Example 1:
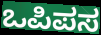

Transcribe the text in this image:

ಒಪಿಪಸ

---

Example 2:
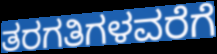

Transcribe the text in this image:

ತರಗತಿಗಳವರೆಗೆ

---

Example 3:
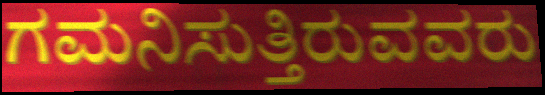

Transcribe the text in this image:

ಗಮನಿಸುತ್ತಿರುವವರು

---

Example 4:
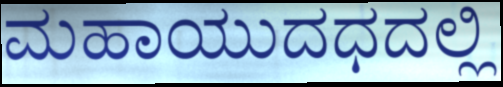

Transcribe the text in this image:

ಮಹಾಯುದಧದಲ್ಲಿ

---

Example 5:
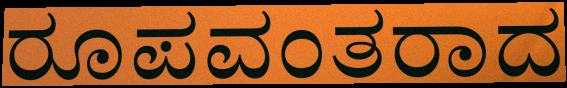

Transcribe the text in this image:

ರೂಪವಂತರಾದ